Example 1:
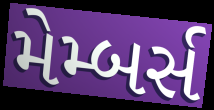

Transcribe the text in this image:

મેમ્બર્સ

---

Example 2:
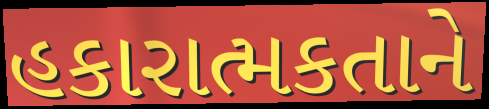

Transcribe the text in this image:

હકારાત્મકતાને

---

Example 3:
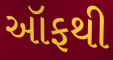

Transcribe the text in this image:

ઑફથી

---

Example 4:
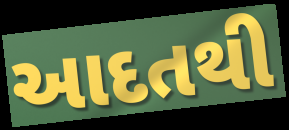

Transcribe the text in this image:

આદતથી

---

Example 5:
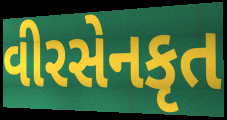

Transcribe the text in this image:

વીરસેનકૃત